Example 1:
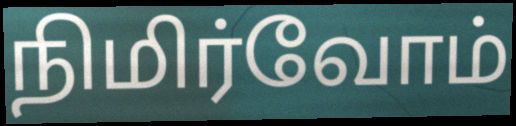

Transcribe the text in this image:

நிமிர்வோம்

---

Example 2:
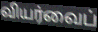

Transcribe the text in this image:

வியர்வைப்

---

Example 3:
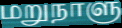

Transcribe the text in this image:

மறுநாளு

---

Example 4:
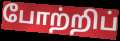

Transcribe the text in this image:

போற்றிப்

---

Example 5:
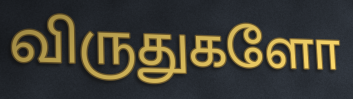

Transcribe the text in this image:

விருதுகளோ